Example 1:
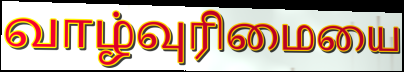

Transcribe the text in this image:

வாழ்வுரிமையை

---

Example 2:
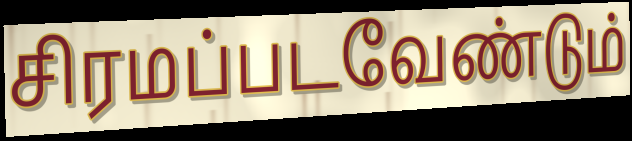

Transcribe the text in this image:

சிரமப்படவேண்டும்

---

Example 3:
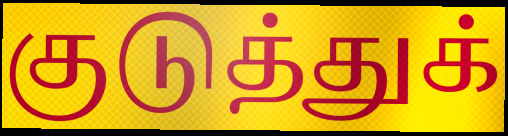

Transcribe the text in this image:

குடுத்துக்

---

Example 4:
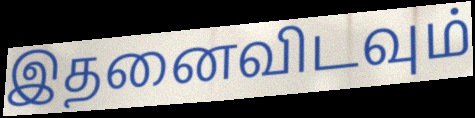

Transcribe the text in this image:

இதனைவிடவும்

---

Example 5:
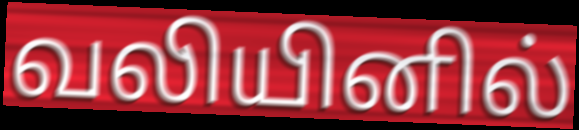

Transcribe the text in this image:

வலியினில்